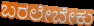
ಬರಲೇಬೇಕು